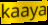
kaaya